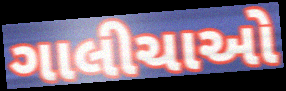
ગાલીચાઓ